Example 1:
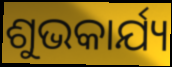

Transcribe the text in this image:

ଶୁଭକାର୍ଯ୍ୟ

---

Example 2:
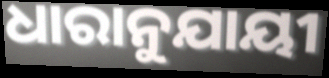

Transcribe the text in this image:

ଧାରାନୁଯାୟୀ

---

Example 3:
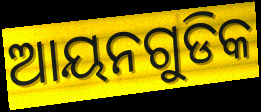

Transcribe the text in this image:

ଆୟନଗୁଡିକ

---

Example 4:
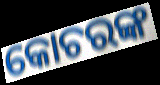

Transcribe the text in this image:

କୋଚରଙ୍କ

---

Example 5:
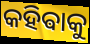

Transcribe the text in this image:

କହିଵାକୁ